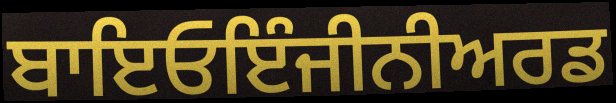
ਬਾਇਓਇੰਜੀਨੀਅਰਡ